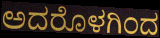
ಅದರೊಳಗಿಂದ